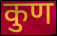
कुण